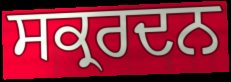
ਸਕ੍ਰਰਦਨ